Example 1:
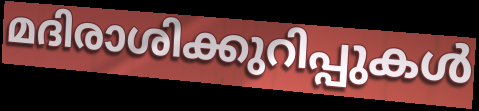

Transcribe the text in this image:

മദിരാശിക്കുറിപ്പുകൾ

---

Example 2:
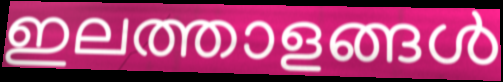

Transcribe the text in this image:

ഇലത്താളങ്ങൾ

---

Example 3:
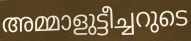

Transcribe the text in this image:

അമ്മാളുട്ടീച്ചറുടെ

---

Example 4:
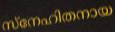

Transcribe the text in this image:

സ്നേഹിതനായ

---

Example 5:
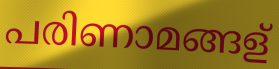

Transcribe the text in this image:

പരിണാമങ്ങള്